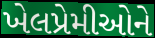
ખેલપ્રેમીઓને